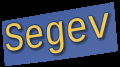
Segev